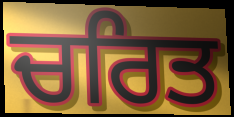
ਚਰਿਤ